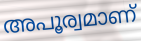
അപൂര്വമാണ്